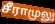
சீராமுலு